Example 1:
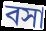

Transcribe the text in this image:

বসা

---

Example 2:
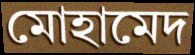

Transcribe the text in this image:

মোহামেদ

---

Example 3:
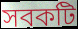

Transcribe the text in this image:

সবকটি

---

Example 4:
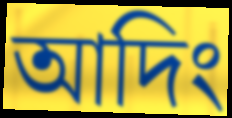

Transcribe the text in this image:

আদিং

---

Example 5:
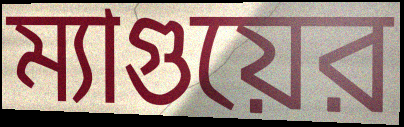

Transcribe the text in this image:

ম্যাগুয়ের